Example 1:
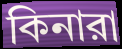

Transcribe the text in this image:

কিনারা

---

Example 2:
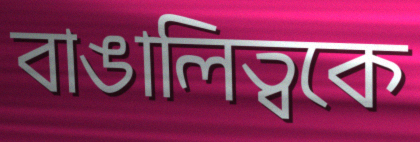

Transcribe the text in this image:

বাঙালিত্বকে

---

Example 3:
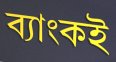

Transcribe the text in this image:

ব্যাংকই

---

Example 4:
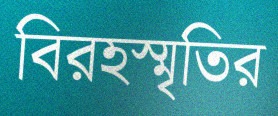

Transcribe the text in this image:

বিরহস্মৃতির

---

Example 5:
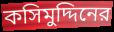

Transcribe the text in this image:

কসিমুদ্দিনের